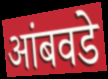
आंबवडे